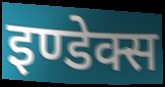
इण्डेक्स